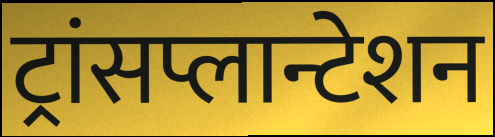
ट्रांसप्लान्टेशन